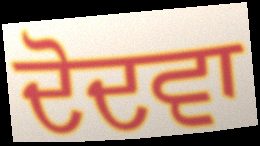
ਦੋਦਵਾ